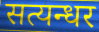
सत्यन्धर